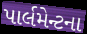
પાર્લમેન્ટના